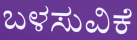
ಬಳಸುವಿಕೆ